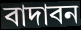
বাদাবন